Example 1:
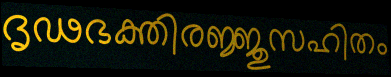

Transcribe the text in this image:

ദൃഢഭക്തിരജ്ജുസഹിതം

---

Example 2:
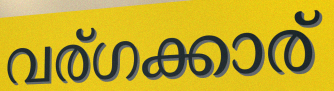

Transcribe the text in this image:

വര്ഗക്കാര്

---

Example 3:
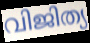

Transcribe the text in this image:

വിജിത്യ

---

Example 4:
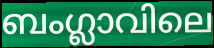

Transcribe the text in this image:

ബംഗ്ലാവിലെ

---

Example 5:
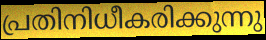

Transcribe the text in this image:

പ്രതിനിധീകരിക്കുന്നു